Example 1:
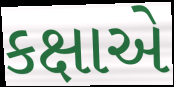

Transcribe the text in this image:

કક્ષાએ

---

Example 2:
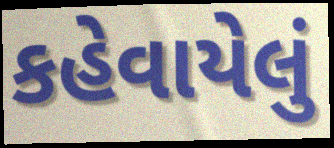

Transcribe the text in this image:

કહેવાયેલું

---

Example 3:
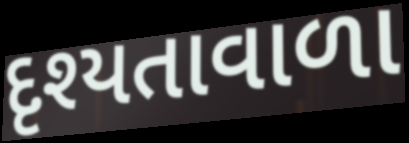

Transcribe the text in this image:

દૃશ્યતાવાળા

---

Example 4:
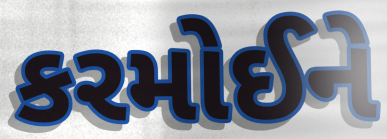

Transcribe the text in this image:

કરમોઈને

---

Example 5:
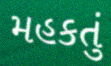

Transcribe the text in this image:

મહકતું